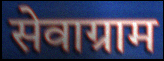
सेवाग्राम